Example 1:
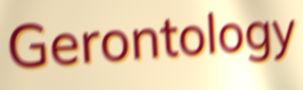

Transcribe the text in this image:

Gerontology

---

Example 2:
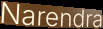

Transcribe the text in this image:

Narendra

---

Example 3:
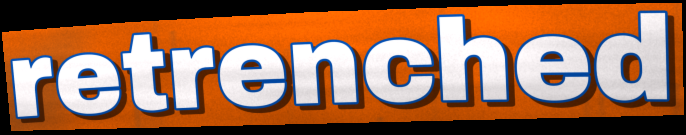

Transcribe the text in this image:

retrenched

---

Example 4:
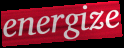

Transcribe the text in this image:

energize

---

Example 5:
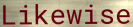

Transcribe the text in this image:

Likewise